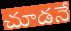
చూడనే